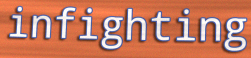
infighting